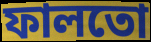
ফালতো